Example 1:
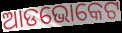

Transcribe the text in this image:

ଆଡଭୋକେଟ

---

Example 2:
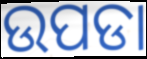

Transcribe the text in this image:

ଉପଡା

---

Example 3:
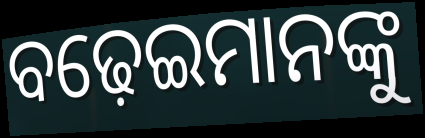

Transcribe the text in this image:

ବଢ଼େଇମାନଙ୍କୁ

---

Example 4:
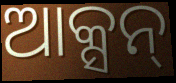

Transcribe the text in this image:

ଆକ୍ସନ୍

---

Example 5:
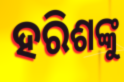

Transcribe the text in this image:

ହରିଶଙ୍କୁ